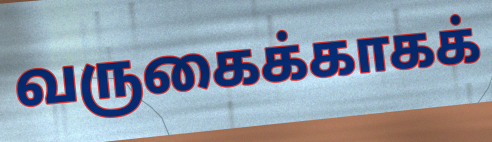
வருகைக்காகக்